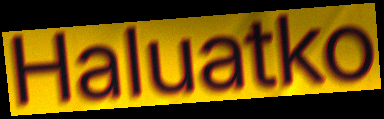
Haluatko